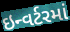
ઇન્વર્ટરમાં